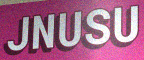
JNUSU